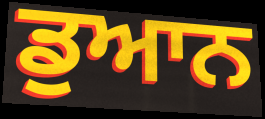
ਡੁਆਨ